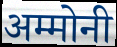
अम्मोनी